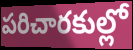
పరిచారకుల్లో